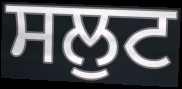
ਸਲੁਟ